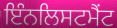
ਇੰਨਲਿਸਟਮੈਂਟ